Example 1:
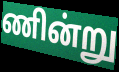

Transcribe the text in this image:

ணின்று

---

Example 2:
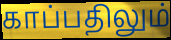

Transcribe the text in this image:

காப்பதிலும்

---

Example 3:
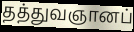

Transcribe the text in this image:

தத்துவஞானப்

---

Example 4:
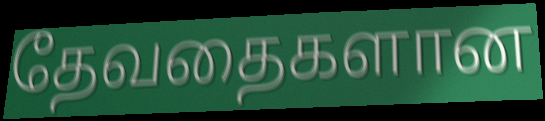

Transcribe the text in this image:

தேவதைகளான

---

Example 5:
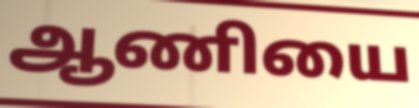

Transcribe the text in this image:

ஆணியை